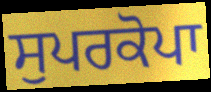
ਸੁਪਰਕੋਪਾ